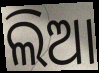
ଲିଆ